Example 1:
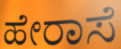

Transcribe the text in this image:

ಹೇರಾಸೆ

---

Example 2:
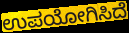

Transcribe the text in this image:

ಉಪಯೋಗಿಸಿದೆ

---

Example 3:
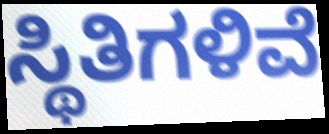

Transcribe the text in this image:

ಸ್ಥಿತಿಗಳಿವೆ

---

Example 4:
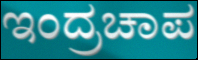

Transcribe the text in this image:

ಇಂದ್ರಚಾಪ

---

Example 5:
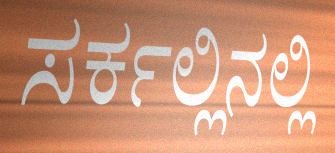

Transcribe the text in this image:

ಸರ್ಕಲ್ಲಿನಲ್ಲಿ